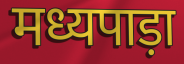
मध्यपाड़ा